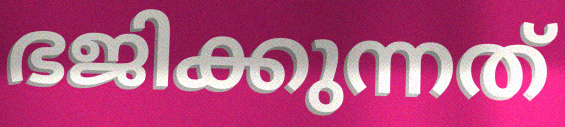
ഭജിക്കുന്നത്